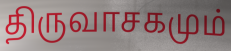
திருவாசகமும்